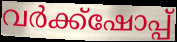
വർക്ക്ഷോപ്പ്